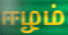
ஈழம்